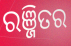
ରଞ୍ଜିତର